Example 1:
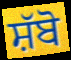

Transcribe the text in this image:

ਸ਼ੱਬੋ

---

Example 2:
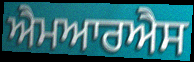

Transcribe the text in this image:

ਐਮਆਰਐਸ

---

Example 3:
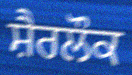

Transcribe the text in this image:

ਸ਼ੈਰਲੌਕ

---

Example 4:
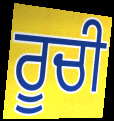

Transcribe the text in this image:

ਰੂਚੀ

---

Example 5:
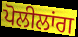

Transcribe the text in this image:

ਪੋਲੀਲਾਂਗ